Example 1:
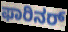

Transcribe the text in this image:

ಫಾರಿನರ್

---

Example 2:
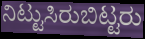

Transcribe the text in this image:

ನಿಟ್ಟುಸಿರುಬಿಟ್ಟರು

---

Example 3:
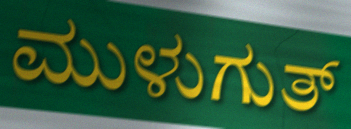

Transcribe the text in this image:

ಮುಳುಗುತ್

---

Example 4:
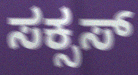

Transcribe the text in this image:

ಸಕ್ಸಸ್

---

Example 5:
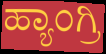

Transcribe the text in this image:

ಹ್ಯಾಂಗ್ರಿ